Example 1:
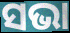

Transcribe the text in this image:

ସଭା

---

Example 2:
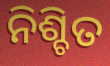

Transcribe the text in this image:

ନିଶ୍ଚିତ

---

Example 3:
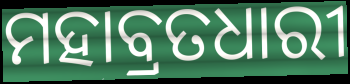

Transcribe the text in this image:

ମହାବ୍ରତଧାରୀ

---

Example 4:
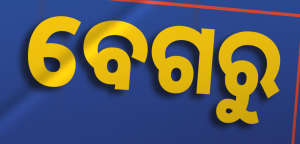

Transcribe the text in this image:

ବେଗରୁ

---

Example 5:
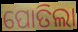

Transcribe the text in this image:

ପୋତିଲା